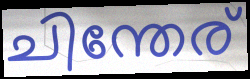
ചിന്തേര്